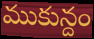
ముకున్దం